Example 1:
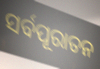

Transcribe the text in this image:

ସର୍ବପୂରାତନ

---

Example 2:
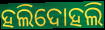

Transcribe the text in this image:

ହଲିଦୋହଲି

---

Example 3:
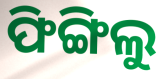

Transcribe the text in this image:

ଫିଙ୍ଗିଲୁ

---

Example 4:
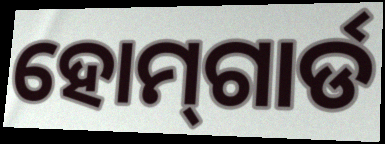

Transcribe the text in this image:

ହୋମ୍‌ଗାର୍ଡ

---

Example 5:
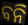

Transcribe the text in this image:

ବନି